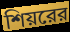
শিয়রের